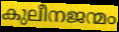
കുലീനജന്മം